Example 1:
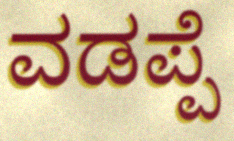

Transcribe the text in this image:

ವಡಪ್ಪೆ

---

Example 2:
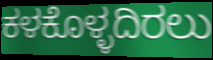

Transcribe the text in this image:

ಕಳಕೊಳ್ಳದಿರಲು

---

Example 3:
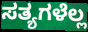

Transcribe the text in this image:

ಸತ್ಯಗಳೆಲ್ಲ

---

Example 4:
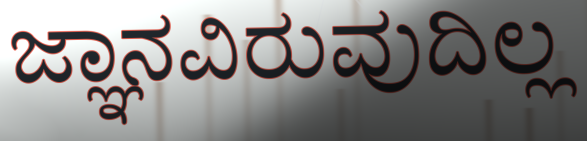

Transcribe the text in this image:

ಜ್ಞಾನವಿರುವುದಿಲ್ಲ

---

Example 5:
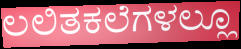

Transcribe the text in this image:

ಲಲಿತಕಲೆಗಳಲ್ಲೂ